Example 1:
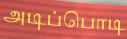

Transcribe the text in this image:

அடிப்பொடி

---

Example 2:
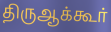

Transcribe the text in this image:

திருஆக்கூர்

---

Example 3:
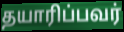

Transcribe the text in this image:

தயாரிப்பவர்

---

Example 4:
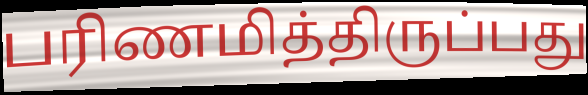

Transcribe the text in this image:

பரிணமித்திருப்பது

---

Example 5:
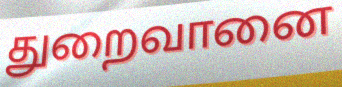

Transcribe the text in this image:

துறைவானை